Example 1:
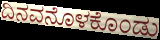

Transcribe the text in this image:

ದಿನವನೊಳಕೊಂಡು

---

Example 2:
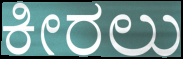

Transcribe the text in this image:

ಕೀರಲು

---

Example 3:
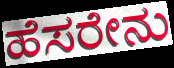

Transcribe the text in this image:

ಹೆಸರೇನು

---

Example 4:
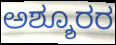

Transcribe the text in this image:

ಅಶ್ಶೂರರ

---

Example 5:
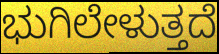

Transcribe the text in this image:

ಭುಗಿಲೇಳುತ್ತದೆ